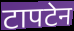
टापटेन